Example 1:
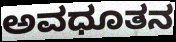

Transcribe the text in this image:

ಅವಧೂತನ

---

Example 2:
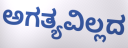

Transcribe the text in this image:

ಅಗತ್ಯವಿಲ್ಲದ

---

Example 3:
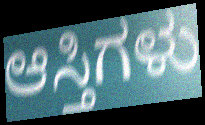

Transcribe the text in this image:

ಆಸ್ತಿಗಳು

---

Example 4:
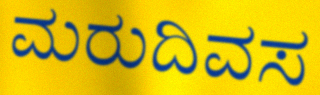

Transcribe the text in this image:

ಮರುದಿವಸ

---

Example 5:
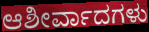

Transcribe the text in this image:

ಆಶೀರ್ವಾದಗಳು